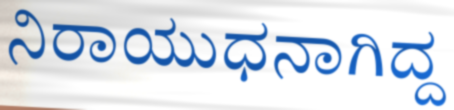
ನಿರಾಯುಧನಾಗಿದ್ದ